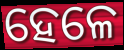
ହେଳେ